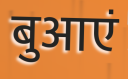
बुआएं